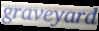
graveyard